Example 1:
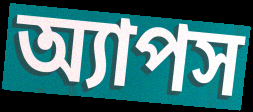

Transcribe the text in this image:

অ্যাপস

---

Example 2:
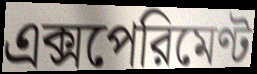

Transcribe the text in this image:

এক্সপেরিমেণ্ট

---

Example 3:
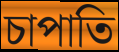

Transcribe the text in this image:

চাপাতি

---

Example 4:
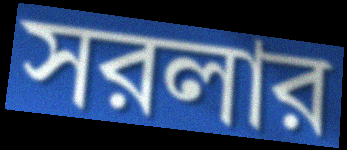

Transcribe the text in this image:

সরলার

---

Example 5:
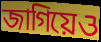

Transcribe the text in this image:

জাগিয়েও